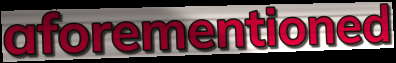
aforementioned